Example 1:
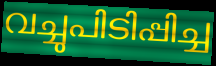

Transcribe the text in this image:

വച്ചുപിടിപ്പിച്ച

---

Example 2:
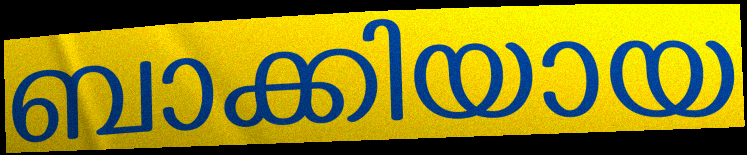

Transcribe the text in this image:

ബാക്കിയായ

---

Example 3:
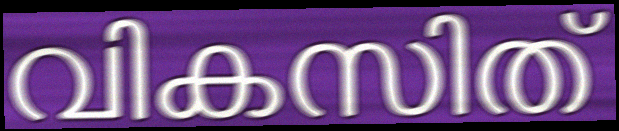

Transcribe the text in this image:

വികസിത്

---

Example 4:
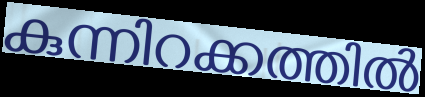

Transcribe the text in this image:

കുന്നിറക്കത്തിൽ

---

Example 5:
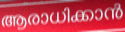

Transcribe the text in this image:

ആരാധിക്കാൻ